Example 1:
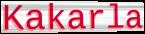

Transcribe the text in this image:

Kakarla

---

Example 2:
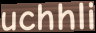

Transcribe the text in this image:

uchhli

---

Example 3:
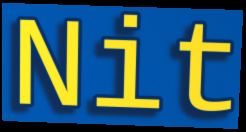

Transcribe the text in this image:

Nit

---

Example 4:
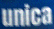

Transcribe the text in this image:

unica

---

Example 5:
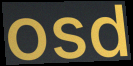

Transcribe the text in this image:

osd